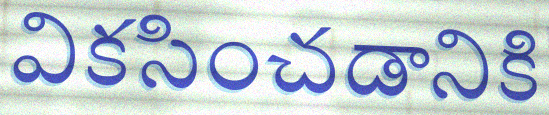
వికసించడానికి